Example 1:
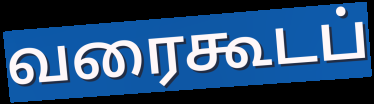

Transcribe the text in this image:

வரைகூடப்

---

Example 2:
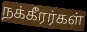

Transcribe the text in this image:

நக்கீரர்கள்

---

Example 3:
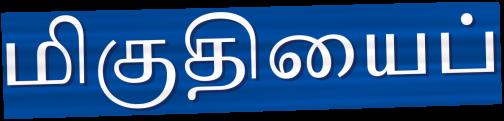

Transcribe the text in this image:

மிகுதியைப்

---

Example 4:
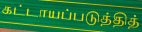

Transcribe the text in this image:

கட்டாயப்படுத்தித்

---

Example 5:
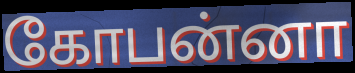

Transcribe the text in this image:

கோபன்னா